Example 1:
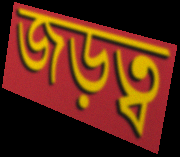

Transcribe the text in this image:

জড়ত্ব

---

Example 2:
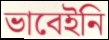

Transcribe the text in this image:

ভাবেইনি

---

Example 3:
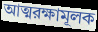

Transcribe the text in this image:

আত্মরক্ষামূলক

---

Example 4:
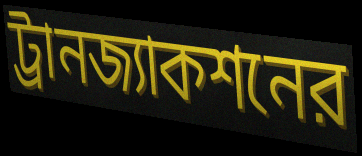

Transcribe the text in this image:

ট্রানজ্যাকশনের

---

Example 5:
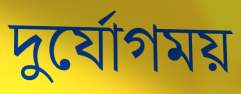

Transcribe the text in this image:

দুর্যোগময়